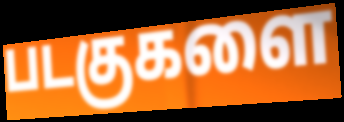
படகுகளை